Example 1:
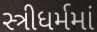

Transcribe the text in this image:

સ્ત્રીધર્મમાં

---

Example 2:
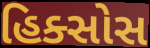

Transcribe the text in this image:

હિક્સોસ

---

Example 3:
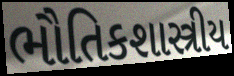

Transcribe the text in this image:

ભૌતિકશાસ્ત્રીય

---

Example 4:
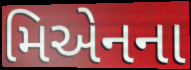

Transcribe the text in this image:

મિએનના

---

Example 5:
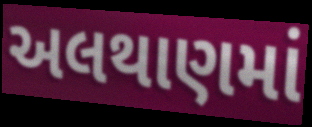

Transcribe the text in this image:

અલથાણમાં